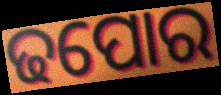
ଢପୋର